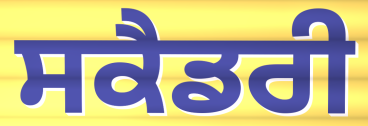
ਸਕੈਡਰੀ